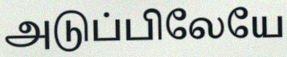
அடுப்பிலேயே